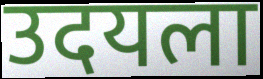
उदयला